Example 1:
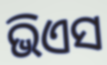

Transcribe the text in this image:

ଭିଏସ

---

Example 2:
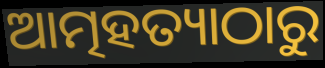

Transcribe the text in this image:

ଆତ୍ମହତ୍ୟାଠାରୁ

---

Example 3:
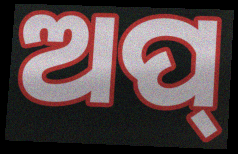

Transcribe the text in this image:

ଅପ୍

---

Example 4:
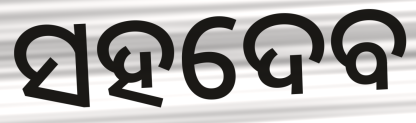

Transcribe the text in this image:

ସହଦେବ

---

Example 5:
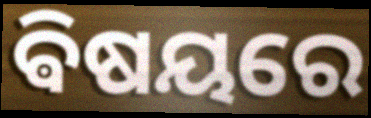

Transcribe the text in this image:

ଵିଷୟରେ